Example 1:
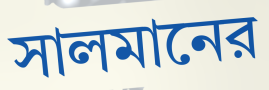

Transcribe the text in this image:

সালমানের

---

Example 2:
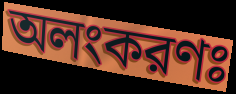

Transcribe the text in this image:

অলংকরণঃ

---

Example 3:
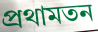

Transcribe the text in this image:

প্রথামতন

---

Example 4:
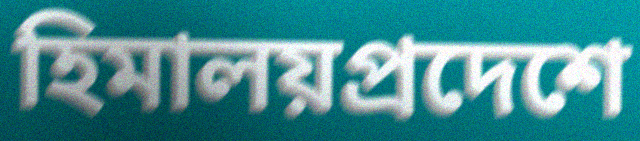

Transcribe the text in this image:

হিমালয়প্রদেশে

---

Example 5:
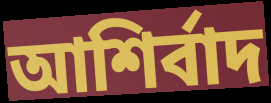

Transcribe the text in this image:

আশির্বাদ